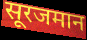
सूरजमान